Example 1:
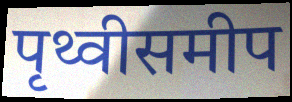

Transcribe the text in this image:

पृथ्वीसमीप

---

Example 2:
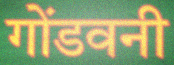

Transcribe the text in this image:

गोंडवनी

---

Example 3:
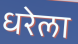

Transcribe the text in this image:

धरेला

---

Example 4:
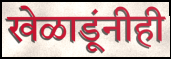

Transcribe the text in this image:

खेळाडूंनीही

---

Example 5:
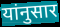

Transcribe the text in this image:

यांनुसार